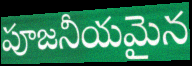
పూజనీయమైన